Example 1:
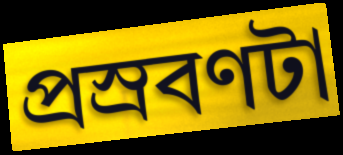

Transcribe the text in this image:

প্রস্রবণটা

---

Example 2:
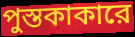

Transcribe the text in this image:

পুস্তকাকারে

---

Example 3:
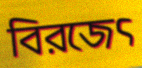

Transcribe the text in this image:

বিরজেৎ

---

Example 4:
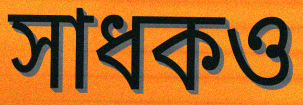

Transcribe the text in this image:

সাধকও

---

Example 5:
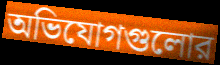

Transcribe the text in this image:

অভিযোগগুলোর